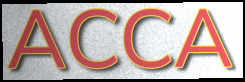
ACCA